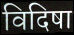
विदिषा